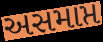
અસમાપ્ત